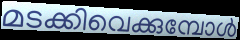
മടക്കിവെക്കുമ്പോൾ